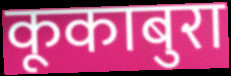
कूकाबुरा